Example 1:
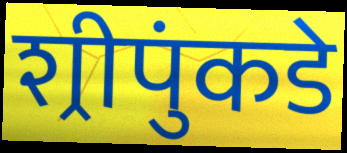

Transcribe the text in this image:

श्रीपुंकडे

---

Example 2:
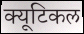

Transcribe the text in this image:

क्यूटिकल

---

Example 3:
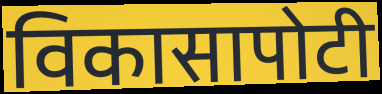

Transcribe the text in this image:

विकासापोटी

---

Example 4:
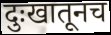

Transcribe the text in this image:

दुःखातूनच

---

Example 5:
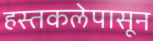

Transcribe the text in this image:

हस्तकलेपासून